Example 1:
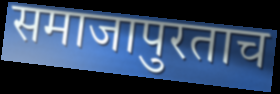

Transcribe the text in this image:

समाजापुरताच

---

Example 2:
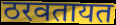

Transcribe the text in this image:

ठरवतायत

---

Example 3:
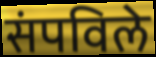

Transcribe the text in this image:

संपविले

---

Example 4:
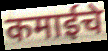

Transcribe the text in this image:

कमाईचे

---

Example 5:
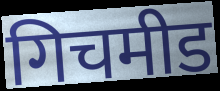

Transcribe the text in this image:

गिचमीड